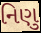
નિણુ